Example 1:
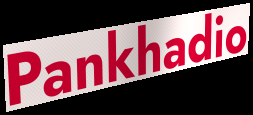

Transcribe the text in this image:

Pankhadio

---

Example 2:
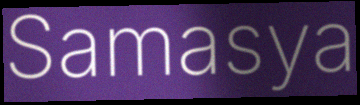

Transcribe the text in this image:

Samasya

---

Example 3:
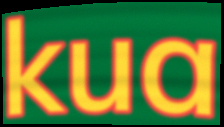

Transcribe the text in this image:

kua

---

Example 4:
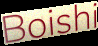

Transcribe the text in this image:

Boishi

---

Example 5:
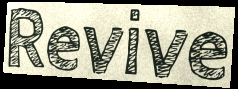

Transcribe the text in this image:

Revive